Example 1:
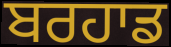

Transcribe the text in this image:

ਬਰਹਾਡ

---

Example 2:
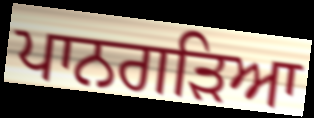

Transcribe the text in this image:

ਪਾਨਗੜਿਆ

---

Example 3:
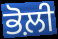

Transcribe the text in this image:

ਭੋਲ਼ੀ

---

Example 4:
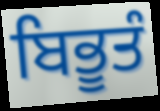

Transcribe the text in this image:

ਬਿਭੂਤੰ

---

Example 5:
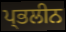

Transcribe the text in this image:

ਪ੍ਭਲੀਨ